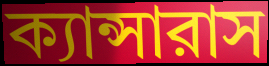
ক্যান্সারাস